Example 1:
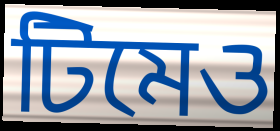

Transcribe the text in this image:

টিমেও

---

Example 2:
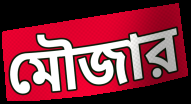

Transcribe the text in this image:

মৌজার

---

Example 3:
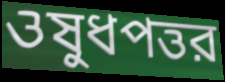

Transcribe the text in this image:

ওষুধপত্তর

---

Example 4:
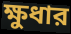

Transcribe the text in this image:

ক্ষুধার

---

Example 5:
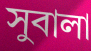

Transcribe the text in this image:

সুবালা